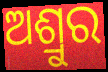
ଅଶ୍ରୁର